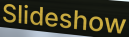
Slideshow